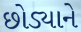
છોડ્યાને